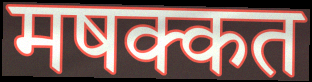
मषक्कत